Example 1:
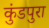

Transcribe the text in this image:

कुंडपुरा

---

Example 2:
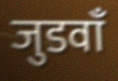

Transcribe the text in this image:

जुडवाँ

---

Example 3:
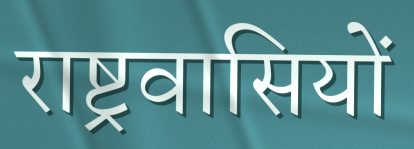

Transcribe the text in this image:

राष्ट्रवासियों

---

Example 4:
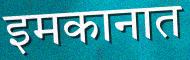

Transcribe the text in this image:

इमकानात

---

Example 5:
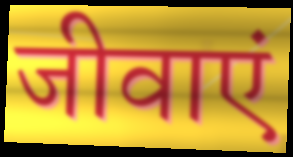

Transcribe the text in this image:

जीवाएं